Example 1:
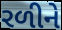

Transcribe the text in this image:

રળીને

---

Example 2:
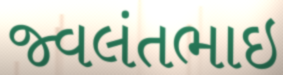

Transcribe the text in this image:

જ્વલંતભાઇ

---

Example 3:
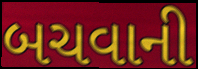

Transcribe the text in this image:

બચવાની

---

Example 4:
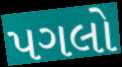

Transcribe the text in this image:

પગલો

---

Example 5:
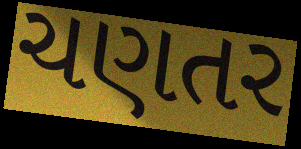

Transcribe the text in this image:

ચણતર